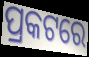
ପ୍ରକଟରେ